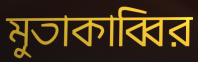
মুতাকাব্বির